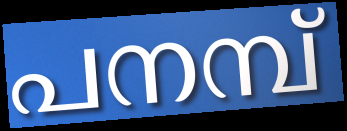
പനമ്പ്